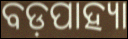
ବଡ଼ପାହ୍ୟା